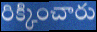
రిక్కించారు